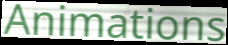
Animations